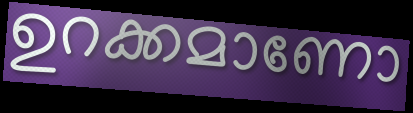
ഉറക്കമാണോ